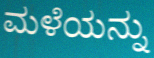
ಮಳೆಯನ್ನು